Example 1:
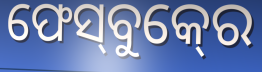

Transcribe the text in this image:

ଫେସ୍‍ବୁକ୍‍ରେ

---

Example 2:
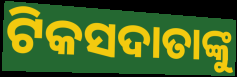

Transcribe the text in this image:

ଟିକସଦାତାଙ୍କୁ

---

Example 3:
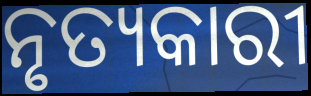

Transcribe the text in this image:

ନୃତ୍ୟକାରୀ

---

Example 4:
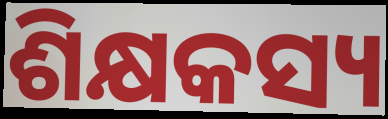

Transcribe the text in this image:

ଶିକ୍ଷକସ୍ୟ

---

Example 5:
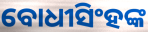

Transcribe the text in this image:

ବୋଧୀସିଂହଙ୍କ